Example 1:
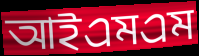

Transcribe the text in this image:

আইএমএম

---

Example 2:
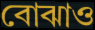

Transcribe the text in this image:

বোঝাও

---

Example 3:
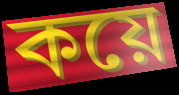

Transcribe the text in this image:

কয়ে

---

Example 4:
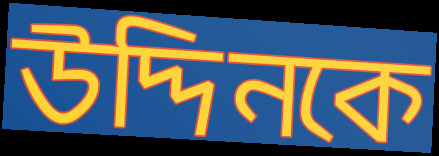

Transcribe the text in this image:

উদ্দিনকে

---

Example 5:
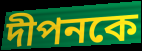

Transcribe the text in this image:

দীপনকে